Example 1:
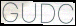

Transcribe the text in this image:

GUDC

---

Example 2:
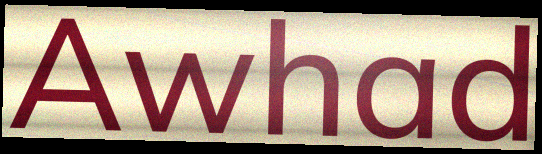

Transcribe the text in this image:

Awhad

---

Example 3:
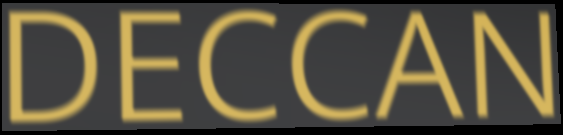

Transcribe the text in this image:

DECCAN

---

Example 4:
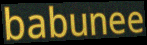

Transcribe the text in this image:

babunee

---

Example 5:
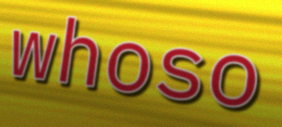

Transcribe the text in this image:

whoso